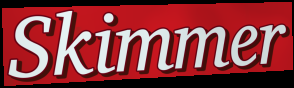
Skimmer